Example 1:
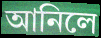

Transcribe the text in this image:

আনিলে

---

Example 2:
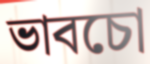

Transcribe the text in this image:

ভাবচো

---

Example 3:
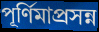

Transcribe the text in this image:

পূর্ণিমাপ্রসন্ন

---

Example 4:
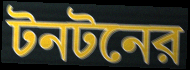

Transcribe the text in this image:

টনটনের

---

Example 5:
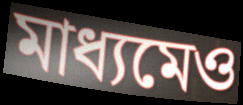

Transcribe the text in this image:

মাধ্যমেও